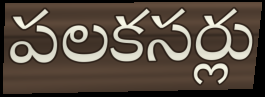
పలకసర్లు